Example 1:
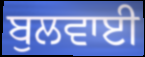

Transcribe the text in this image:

ਬੁਲਵਾਈ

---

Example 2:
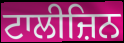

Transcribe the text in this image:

ਟਾਲੀਜ਼ਿਨ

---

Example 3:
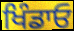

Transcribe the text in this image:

ਖਿੰਡਾਓ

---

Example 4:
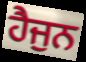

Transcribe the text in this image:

ਹੈਜੁਨ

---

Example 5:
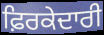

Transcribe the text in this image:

ਫ਼ਿਰਕੇਦਾਰੀ